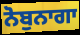
ਨੋਬੁਨਾਗਾ